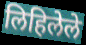
लिहिलेले